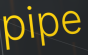
pipe